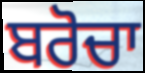
ਬਰੋਚਾ